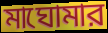
মাঘোমার